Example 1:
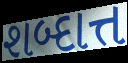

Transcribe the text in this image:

શબ્દાત્ત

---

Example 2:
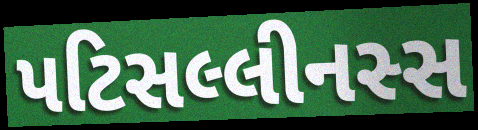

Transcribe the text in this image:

પટિસલ્લીનસ્સ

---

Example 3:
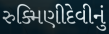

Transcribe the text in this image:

રુક્મિણીદેવીનું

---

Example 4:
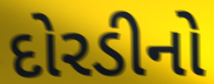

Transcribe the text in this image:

દોરડીનો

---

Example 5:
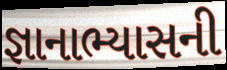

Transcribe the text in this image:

જ્ઞાનાભ્યાસની